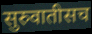
सुरुवातीसच